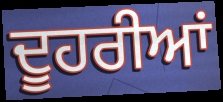
ਦੂਹਰੀਆਂ